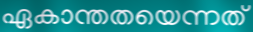
ഏകാന്തതയെന്നത്